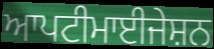
ਆਪਟੀਮਾਈਜੇਸ਼ਨ